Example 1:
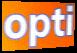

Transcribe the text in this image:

opti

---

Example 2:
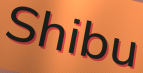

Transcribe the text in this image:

Shibu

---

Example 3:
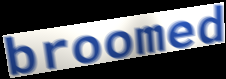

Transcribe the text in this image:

broomed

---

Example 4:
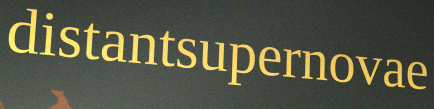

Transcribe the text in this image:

distantsupernovae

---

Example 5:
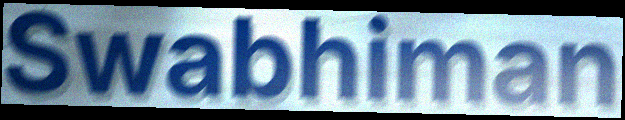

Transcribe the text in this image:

Swabhiman